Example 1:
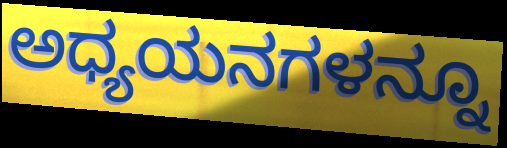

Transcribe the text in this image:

ಅಧ್ಯಯನಗಳನ್ನೂ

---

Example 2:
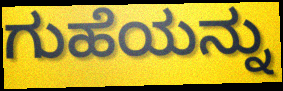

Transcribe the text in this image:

ಗುಹೆಯನ್ನು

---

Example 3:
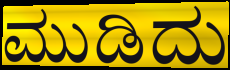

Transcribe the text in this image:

ಮುಡಿದು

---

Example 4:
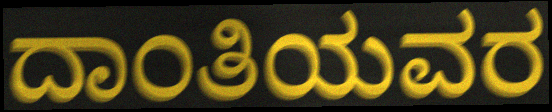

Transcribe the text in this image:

ದಾಂತಿಯವರ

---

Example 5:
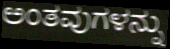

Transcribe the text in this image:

ಅಂತವುಗಳನ್ನು